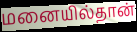
மனையில்தான்